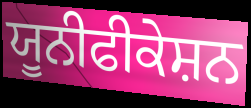
ਯੂਨੀਫੀਕੇਸ਼ਨ